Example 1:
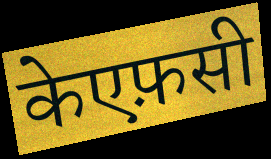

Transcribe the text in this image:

केएफ़सी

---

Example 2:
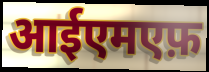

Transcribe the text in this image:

आईएमएफ़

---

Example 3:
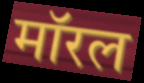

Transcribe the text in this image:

मॉरल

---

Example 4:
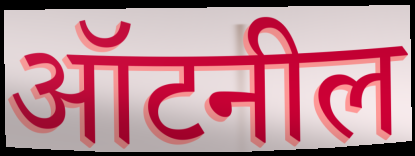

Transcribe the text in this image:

ऑटनील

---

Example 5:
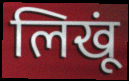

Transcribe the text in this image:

लिखूं